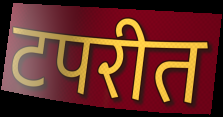
टपरीत